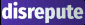
disrepute